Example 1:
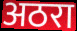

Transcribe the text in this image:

अठरा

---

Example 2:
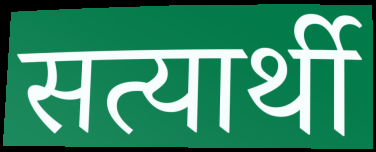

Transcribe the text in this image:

सत्यार्थी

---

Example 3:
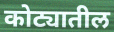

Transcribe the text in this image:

कोट्यातील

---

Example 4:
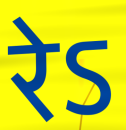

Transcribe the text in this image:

रेऽ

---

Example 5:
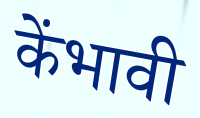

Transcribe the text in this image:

केंभावी